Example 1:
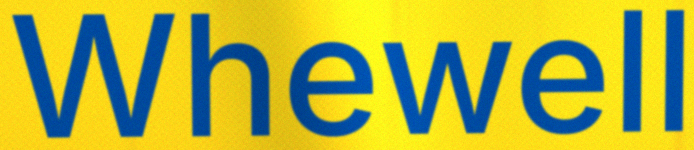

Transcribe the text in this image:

Whewell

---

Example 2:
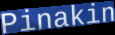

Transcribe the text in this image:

Pinakin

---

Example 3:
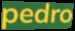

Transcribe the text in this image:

pedro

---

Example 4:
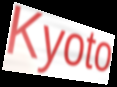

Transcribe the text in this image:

Kyoto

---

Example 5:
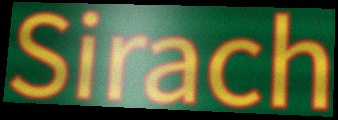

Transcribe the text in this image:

Sirach